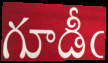
గూడీఁ